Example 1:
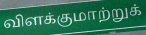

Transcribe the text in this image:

விளக்குமாற்றுக்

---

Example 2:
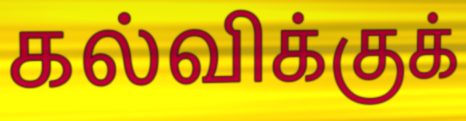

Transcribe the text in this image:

கல்விக்குக்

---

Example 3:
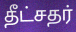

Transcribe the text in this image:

தீட்சதர்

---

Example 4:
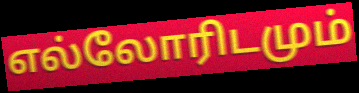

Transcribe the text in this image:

எல்லோரிடமும்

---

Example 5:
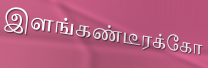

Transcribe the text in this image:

இளங்கண்டீரக்கோ